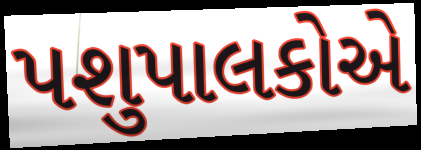
પશુપાલકોએ